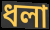
ধলা